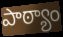
పాఠ్యాం